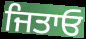
ਜਿਤਾਓ